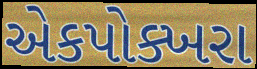
એકપોક્ખરા